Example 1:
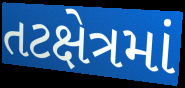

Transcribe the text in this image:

તટક્ષેત્રમાં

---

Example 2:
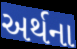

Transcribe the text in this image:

અર્થના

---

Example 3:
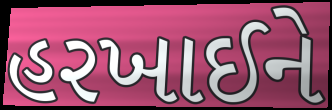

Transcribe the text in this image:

હરખાઈને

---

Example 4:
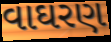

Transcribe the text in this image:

વાઘરણ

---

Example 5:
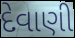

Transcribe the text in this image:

દેવાણી